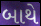
બાથે